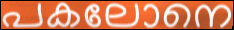
പകലോനെ